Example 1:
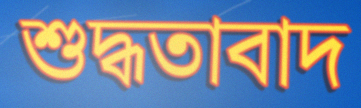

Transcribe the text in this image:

শুদ্ধতাবাদ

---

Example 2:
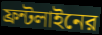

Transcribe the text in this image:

ফ্রন্টলাইনের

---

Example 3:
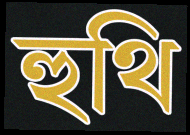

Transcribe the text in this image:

হুথি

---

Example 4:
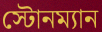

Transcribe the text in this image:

স্টোনম্যান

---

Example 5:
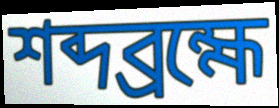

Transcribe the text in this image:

শব্দব্রহ্মে